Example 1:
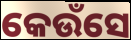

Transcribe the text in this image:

କେଉଁସେ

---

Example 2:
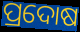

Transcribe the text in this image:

ପ୍ରଦୋଷ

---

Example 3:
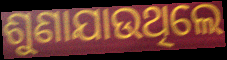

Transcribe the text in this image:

ଶୁଣାଯାଉଥିଲେ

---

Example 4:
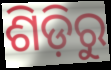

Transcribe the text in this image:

ଶିଡ଼ିରୁ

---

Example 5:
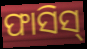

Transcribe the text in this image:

ଫାସିସ୍